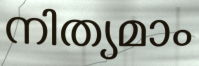
നിത്യമാം